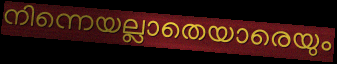
നിന്നെയല്ലാതെയാരെയും